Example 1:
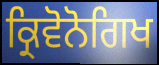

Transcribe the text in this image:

ਕ੍ਰਿਵੋਨੋਗਿਖ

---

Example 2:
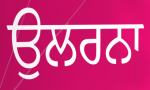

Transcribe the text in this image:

ਉਲਰਨਾ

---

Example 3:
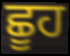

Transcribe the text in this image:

ਛੂਹ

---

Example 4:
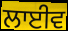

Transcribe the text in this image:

ਲਾਈਵ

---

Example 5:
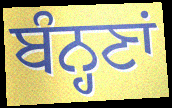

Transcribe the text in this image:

ਬੰਨ੍ਹਣਾਂ